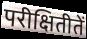
परीक्षितीतें